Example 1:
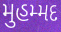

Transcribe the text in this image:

મુહમ્મદ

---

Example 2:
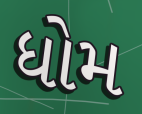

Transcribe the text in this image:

ધોમ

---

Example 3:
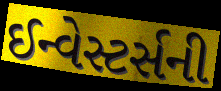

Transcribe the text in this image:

ઈન્વેસ્ટર્સની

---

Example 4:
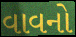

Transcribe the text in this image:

વાવનો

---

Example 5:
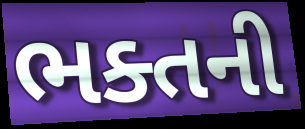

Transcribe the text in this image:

ભક્તની